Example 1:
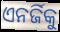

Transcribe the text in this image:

ଏନର୍ଜିକୁ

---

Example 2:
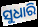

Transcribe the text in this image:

ସୁଧାରି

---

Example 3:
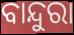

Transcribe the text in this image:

ବାନ୍ଦୁରା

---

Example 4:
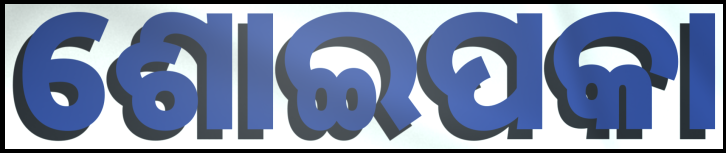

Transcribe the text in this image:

ଶୋଇପକା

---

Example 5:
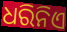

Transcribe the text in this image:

ଧରିନିଏ